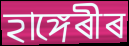
হাঙ্গেৰীৰ